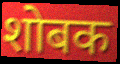
शोबक